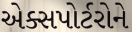
એક્સપોર્ટરોને